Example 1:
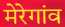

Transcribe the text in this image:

मेरेगांव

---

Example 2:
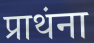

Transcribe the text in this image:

प्राथंना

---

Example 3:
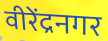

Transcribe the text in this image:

वीरेंद्रनगर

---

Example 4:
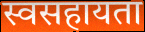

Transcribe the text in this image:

स्वसहायता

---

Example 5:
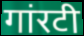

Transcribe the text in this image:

गांरटी